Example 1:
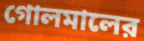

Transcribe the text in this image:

গোলমালের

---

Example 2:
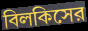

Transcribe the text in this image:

বিলকিসের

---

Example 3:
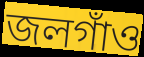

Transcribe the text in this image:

জলগাঁও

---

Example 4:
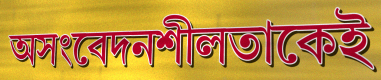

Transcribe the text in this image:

অসংবেদনশীলতাকেই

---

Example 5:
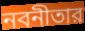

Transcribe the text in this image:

নবনীতার